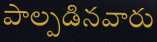
పాల్పడినవారు